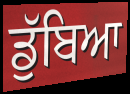
ਡੁੱਬਿਆ